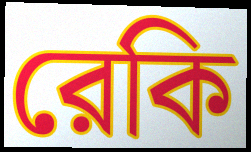
রেকি